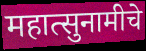
महात्सुनामीचे